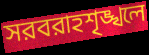
সরবরাহশৃঙ্খলে